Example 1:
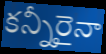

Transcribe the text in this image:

కన్నీరైనా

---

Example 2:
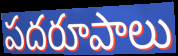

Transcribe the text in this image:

పదరూపాలు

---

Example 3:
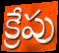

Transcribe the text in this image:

క్రేపు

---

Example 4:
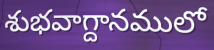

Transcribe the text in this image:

శుభవాగ్దానములో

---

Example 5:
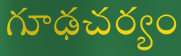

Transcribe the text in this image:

గూఢచర్యం